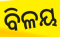
ବିଳୟ